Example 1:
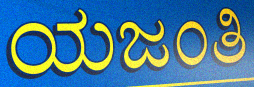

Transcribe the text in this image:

ಯಜಂತಿ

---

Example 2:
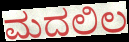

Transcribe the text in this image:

ಮದಲಿಲ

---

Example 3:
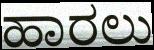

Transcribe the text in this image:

ಹಾರಲು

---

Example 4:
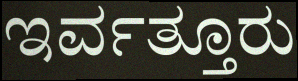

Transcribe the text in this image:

ಇರ್ವತ್ತೂರು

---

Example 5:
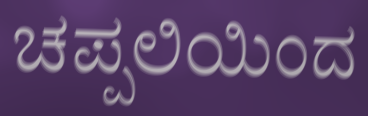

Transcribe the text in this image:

ಚಪ್ಪಲಿಯಿಂದ